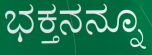
ಭಕ್ತನನ್ನೂ